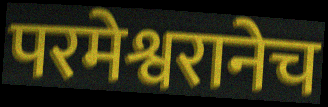
परमेश्वरानेच